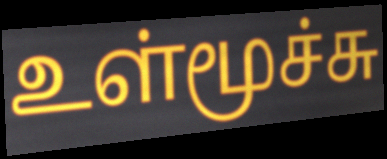
உள்மூச்சு